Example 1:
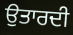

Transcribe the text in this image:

ਉਤਾਰਦੀ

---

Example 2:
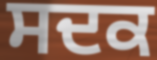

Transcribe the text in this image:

ਸਦਕ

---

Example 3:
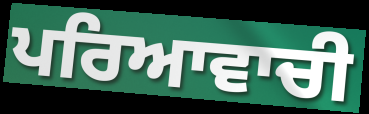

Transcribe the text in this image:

ਪਰਿਆਵਾਚੀ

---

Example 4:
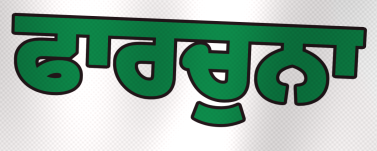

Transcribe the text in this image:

ਫਾਰਚੁਨਾ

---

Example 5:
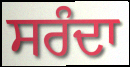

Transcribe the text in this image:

ਸਰੰਦਾ